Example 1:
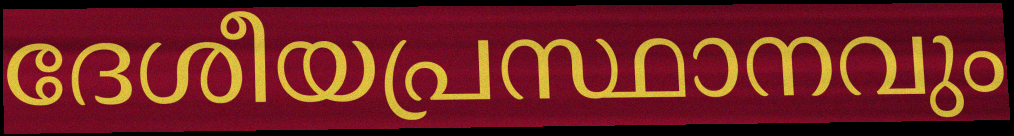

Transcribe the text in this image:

ദേശീയപ്രസ്ഥാനവും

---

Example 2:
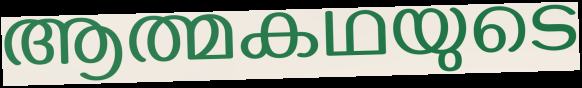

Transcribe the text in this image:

ആത്മകഥയുടെ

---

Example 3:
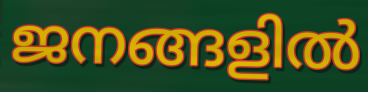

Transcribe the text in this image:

ജനങ്ങളിൽ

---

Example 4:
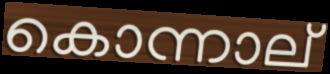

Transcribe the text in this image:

കൊന്നാല്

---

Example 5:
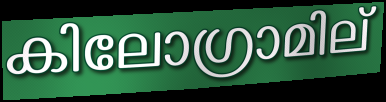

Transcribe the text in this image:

കിലോഗ്രാമില്